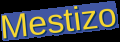
Mestizo